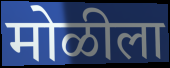
मोळीला